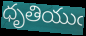
ధృతియుఁ